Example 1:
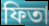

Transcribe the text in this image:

ফিতা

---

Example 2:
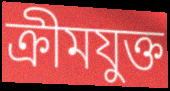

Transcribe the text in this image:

ক্ৰীমযুক্ত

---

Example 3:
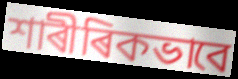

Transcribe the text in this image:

শাৰীৰিকভাবে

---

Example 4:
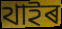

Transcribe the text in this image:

থাইৰ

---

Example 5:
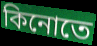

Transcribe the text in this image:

কিনোতে